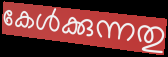
കേൾക്കുന്നതു